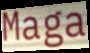
Maga